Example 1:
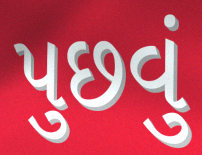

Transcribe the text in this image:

પુછવું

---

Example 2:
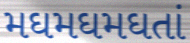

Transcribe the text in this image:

મઘમઘમઘતાં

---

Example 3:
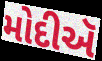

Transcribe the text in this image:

મોદીઍ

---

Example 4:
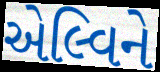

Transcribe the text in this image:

એલ્વિને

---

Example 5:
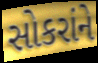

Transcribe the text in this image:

સોકરાંને